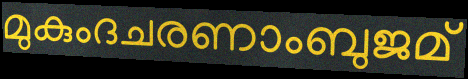
മുകുംദചരണാംബുജമ്